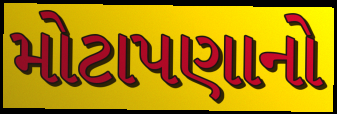
મોટાપણાનો